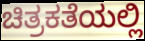
ಚಿತ್ರಕತೆಯಲ್ಲಿ